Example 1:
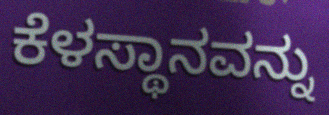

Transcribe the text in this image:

ಕೆಳಸ್ಥಾನವನ್ನು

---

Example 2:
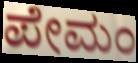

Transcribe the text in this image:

ಪೇಮಂ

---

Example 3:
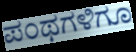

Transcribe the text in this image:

ಪಂಥಗಳಿಗೂ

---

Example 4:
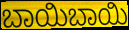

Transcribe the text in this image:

ಬಾಯಿಬಾಯಿ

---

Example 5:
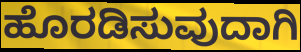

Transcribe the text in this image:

ಹೊರಡಿಸುವುದಾಗಿ